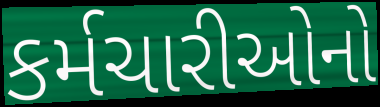
કર્મચારીઓનો